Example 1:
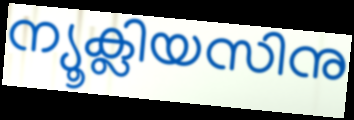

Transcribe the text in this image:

ന്യൂക്ലിയസിനു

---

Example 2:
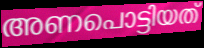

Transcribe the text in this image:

അണപൊട്ടിയത്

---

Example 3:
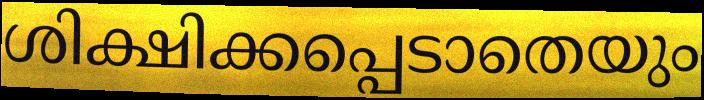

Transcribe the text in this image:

ശിക്ഷിക്കപ്പെടാതെയും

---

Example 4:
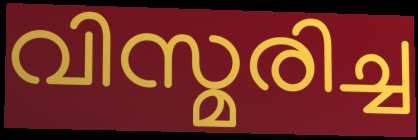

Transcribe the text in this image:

വിസ്മരിച്ച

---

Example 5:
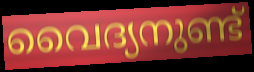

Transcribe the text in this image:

വൈദ്യനുണ്ട്